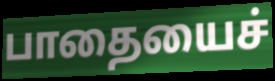
பாதையைச்